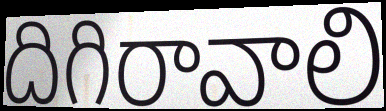
దిగిరావాలి